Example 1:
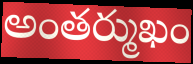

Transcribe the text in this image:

అంతర్ముఖం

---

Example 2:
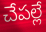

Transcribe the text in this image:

చేపల్లే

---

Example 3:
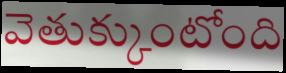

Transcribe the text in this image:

వెతుక్కుంటోంది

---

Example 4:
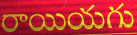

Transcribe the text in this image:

రాయియగు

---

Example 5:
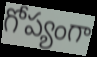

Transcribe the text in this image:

గోప్యంగా